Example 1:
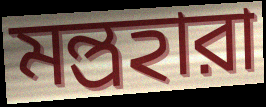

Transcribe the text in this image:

মন্ত্রহারা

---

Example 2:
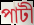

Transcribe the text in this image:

পাটী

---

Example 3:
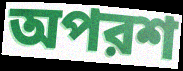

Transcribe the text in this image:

অপরশ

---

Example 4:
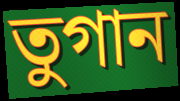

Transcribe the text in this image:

তুগান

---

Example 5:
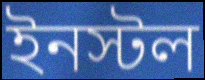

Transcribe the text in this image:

ইনস্টল